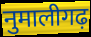
नुमालीगढ़